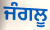
ਜੰਗਲੂ